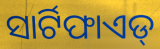
ସାର୍ଟିଫାଏଡ୍